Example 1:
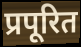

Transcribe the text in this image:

प्रपूरित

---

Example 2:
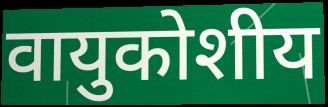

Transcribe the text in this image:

वायुकोशीय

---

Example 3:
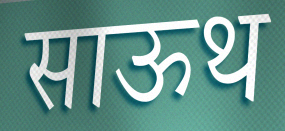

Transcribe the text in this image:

साऊथ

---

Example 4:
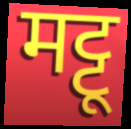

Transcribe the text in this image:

मट्टू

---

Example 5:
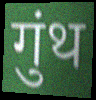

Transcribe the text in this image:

गुंथ